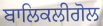
ਬਾਲਿਕਲੀਗੋਲ